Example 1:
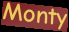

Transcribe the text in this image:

Monty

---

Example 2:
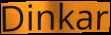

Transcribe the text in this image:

Dinkar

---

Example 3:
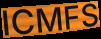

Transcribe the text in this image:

ICMFS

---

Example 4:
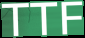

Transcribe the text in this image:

TTF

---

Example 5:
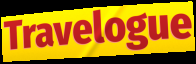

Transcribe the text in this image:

Travelogue